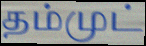
தம்முட்